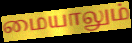
மையாலும்